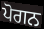
ਪੋਗਨ